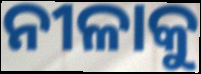
ନୀଳାକୁ